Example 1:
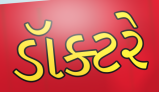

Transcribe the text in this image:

ડૉક્ટરે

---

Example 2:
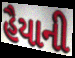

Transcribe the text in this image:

હૈયાની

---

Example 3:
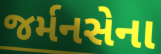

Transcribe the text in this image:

જર્મનસેના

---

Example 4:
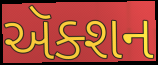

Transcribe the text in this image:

ઍક્શન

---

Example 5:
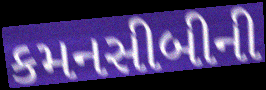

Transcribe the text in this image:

કમનસીબીની